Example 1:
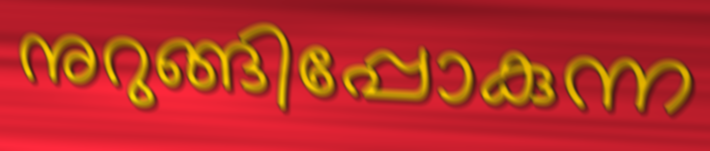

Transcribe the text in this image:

നുറുങ്ങിപ്പോകുന്ന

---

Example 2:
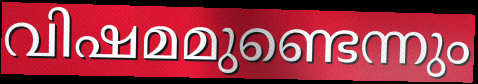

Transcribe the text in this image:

വിഷമമുണ്ടെന്നും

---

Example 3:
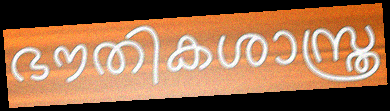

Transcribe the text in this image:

ഭൗതികശാസ്ത്ര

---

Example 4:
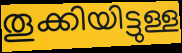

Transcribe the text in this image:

തൂക്കിയിട്ടുള്ള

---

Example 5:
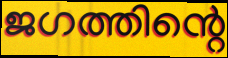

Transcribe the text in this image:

ജഗത്തിന്റെ